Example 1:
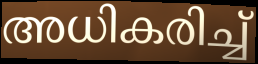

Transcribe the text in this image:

അധികരിച്ച്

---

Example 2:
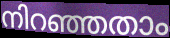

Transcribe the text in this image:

നിറഞ്ഞതാം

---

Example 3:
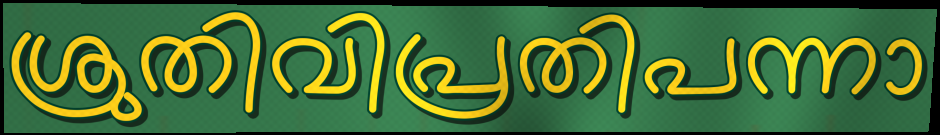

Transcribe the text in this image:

ശ്രുതിവിപ്രതിപന്നാ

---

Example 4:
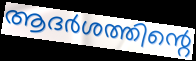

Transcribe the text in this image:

ആദർശത്തിന്റെ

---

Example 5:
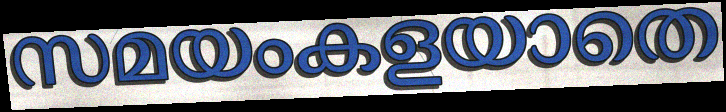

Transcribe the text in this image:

സമയംകളയാതെ